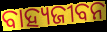
ବାହ୍ୟଜୀବନ